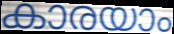
കാരയാം